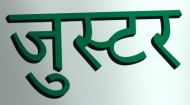
जुस्टर